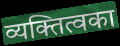
व्यक्तित्वका